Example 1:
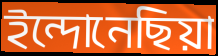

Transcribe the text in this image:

ইন্দোনেছিয়া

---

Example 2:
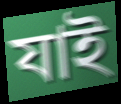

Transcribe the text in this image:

যাই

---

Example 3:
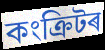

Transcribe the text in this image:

কংক্ৰিটৰ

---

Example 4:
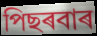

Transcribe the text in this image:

পিছৰবাৰ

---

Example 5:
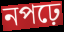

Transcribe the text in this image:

নপঢ়ে